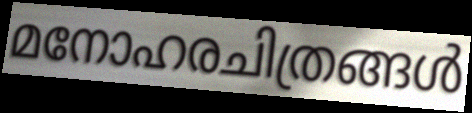
മനോഹരചിത്രങ്ങൾ